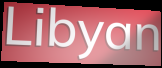
Libyan